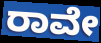
ರಾವೇ